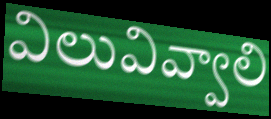
విలువివ్వాలి